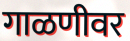
गाळणीवर